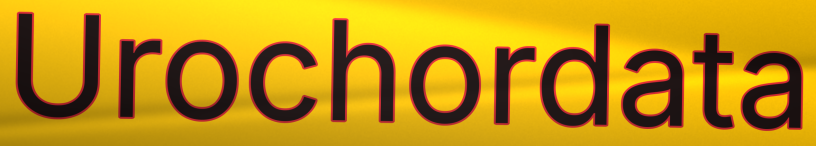
Urochordata